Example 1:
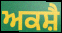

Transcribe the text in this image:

ਅਕਸ਼ੈ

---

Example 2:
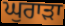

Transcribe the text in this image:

ਘੁਰਾੜਾ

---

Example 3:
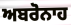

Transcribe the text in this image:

ਅਬਰੋਨਾਹ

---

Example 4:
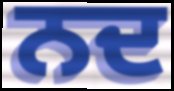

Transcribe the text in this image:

ਨਦ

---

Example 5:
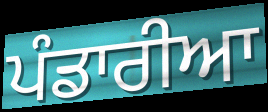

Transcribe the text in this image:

ਪੰਡਾਰੀਆ